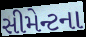
સીમેન્ટના